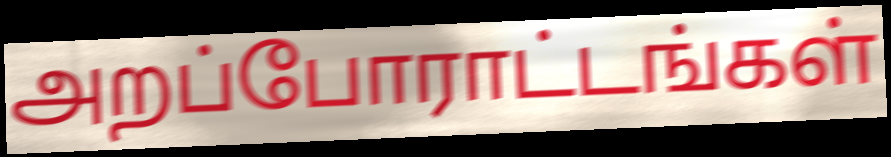
அறப்போராட்டங்கள்